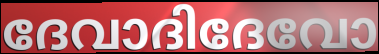
ദേവാദിദേവോ